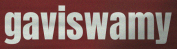
gaviswamy